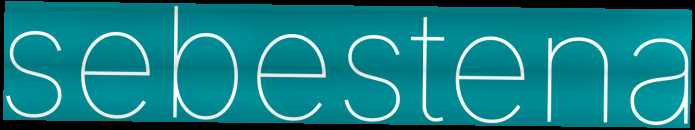
sebestena